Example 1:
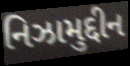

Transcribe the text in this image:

નિઝામુદ્દીન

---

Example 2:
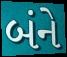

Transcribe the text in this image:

બંને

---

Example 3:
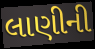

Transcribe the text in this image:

લાણીની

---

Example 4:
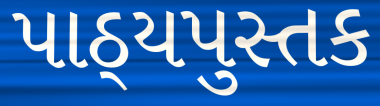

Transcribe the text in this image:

પાઠ્યપુસ્તક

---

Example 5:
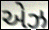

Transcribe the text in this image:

એઝ